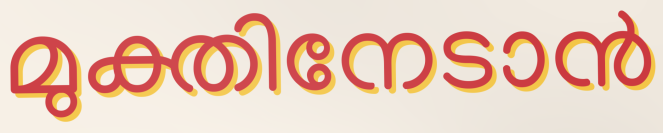
മുക്തിനേടാൻ